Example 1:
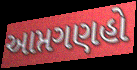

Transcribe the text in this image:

આપ્તગણહો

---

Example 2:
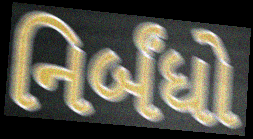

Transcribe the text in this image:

નિર્બંધો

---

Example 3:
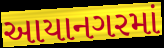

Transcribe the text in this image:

આયાનગરમાં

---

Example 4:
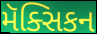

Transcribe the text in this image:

મૅક્સિકન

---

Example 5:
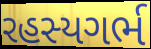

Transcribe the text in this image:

રહસ્યગર્ભ